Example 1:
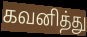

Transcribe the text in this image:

கவனித்து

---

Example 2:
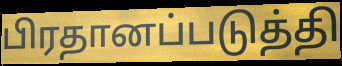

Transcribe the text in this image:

பிரதானப்படுத்தி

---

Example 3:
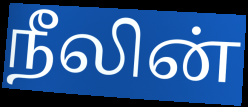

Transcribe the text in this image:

நீலின்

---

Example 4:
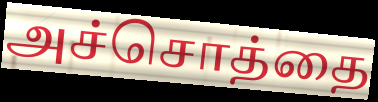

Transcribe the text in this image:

அச்சொத்தை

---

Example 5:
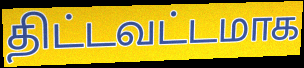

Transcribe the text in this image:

திட்டவட்டமாக